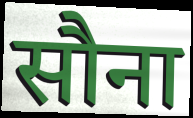
सौना